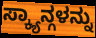
ಸ್ಕ್ಯಾನ್ಗಳನ್ನು